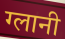
ग्लानी